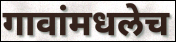
गावांमधलेच